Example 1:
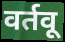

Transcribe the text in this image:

वर्तवू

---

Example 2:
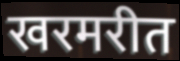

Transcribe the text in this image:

खरमरीत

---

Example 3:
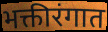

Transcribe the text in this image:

भक्तीरंगात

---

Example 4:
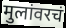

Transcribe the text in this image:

मुलांवरचं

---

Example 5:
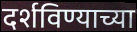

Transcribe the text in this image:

दर्शविण्याच्या